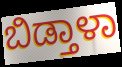
ಬಿಡ್ತಾಳಾ